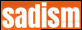
sadism